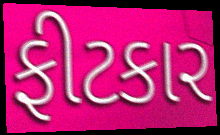
ફીટકાર